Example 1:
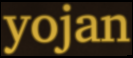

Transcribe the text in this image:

yojan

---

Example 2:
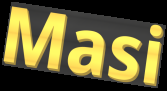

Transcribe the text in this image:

Masi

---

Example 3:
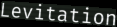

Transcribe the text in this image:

Levitation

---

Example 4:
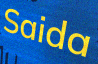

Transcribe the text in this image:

Saida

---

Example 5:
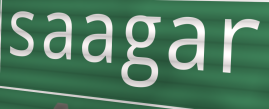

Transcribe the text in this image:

saagar